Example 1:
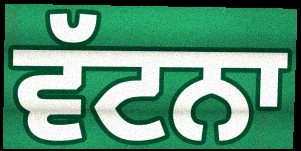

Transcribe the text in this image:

ਵੱਟਨਾ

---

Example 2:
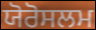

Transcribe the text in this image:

ਯੋਰੋਸਲਮ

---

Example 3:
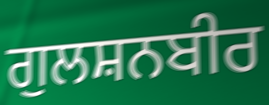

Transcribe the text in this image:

ਗੁਲਸ਼ਨਬੀਰ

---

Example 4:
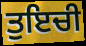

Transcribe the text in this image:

ਤੁਇਚੀ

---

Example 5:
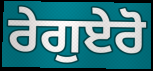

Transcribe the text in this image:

ਰੇਗੁਏਰੋ